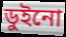
ডুইনো